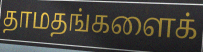
தாமதங்களைக்